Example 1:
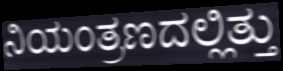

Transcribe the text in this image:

ನಿಯಂತ್ರಣದಲ್ಲಿತ್ತು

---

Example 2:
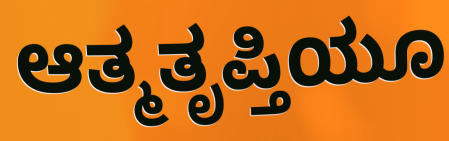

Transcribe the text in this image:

ಆತ್ಮತೃಪ್ತಿಯೂ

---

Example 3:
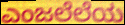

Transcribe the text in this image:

ಎಂಜಲೆಲೆಯ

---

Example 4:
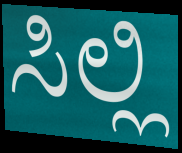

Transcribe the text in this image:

ಸಿಲ್ಲಿ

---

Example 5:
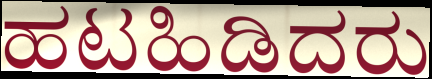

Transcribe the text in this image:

ಹಟಹಿಡಿದರು